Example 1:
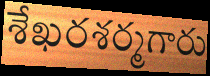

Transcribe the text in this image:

శేఖరశర్మగారు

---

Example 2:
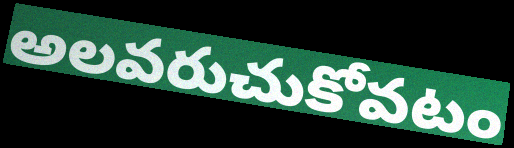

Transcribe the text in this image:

అలవరుచుకోవటం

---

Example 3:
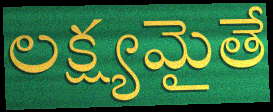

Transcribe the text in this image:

లక్ష్యమైతే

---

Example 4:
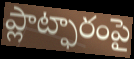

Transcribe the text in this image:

ప్లాట్ఫారంపై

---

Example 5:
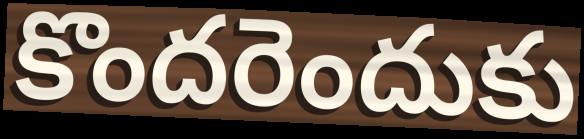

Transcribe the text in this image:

కొందరెందుకు